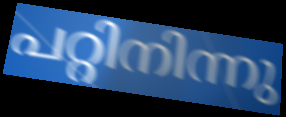
പറ്റിനിന്നു